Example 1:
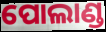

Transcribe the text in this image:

ପୋଲାଣ୍ଡ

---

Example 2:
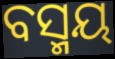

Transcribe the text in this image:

ବସ୍ମୟ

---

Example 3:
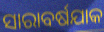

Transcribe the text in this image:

ସାରାବର୍ଷଯାକ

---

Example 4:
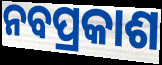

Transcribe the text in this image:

ନବପ୍ରକାଶ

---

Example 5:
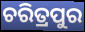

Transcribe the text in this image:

ଚରିତ୍ରପୁର